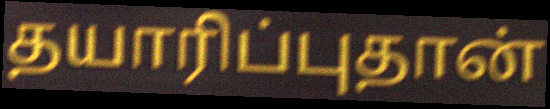
தயாரிப்புதான்